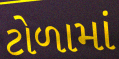
ટોળામાં